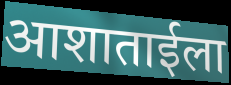
आशाताईला